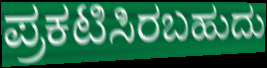
ಪ್ರಕಟಿಸಿರಬಹುದು